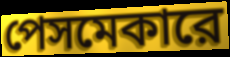
পেসমেকারে